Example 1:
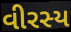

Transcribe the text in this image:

વીરસ્ય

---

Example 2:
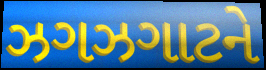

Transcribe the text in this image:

ઝગઝગાટને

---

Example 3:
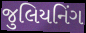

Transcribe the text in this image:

જુલિયનિંગ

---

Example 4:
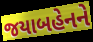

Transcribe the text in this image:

જયાબહેનને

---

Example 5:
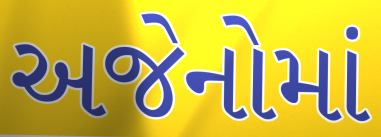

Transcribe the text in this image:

અજેનોમાં